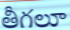
తీగలూ